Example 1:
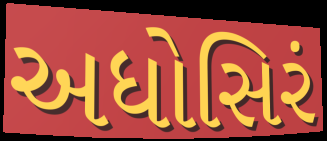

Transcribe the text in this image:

અધોસિરં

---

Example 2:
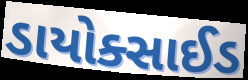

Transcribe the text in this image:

ડાયોક્સાઈડ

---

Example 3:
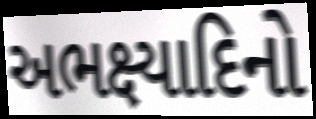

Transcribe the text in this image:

અભક્ષ્યાદિનો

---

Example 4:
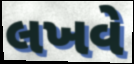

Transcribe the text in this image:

લખવે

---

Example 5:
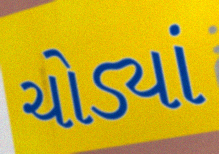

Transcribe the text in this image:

ચોડ્યાં